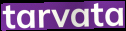
tarvata